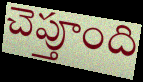
చెప్తూంది